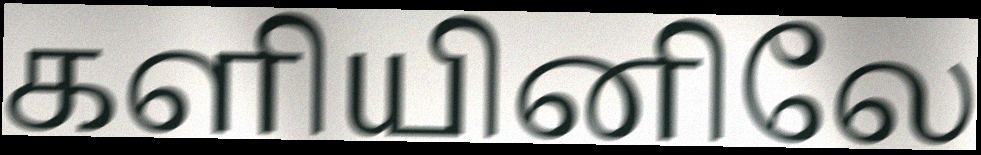
களியினிலே